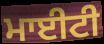
ਮਾਈਟੀ